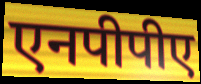
एनपीपीए